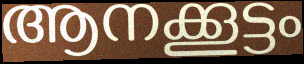
ആനക്കൂട്ടം